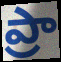
ప్రా